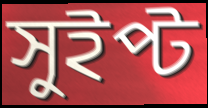
সুইপ্ট